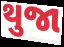
થુજા